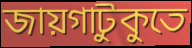
জায়গাটুকুতে